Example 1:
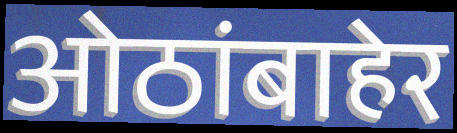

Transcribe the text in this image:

ओठांबाहेर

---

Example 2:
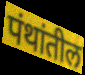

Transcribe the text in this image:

पंथांतील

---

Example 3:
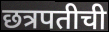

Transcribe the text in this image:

छत्रपतीची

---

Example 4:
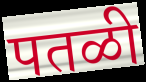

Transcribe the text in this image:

पतळी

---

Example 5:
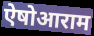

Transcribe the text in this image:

ऐषोआराम